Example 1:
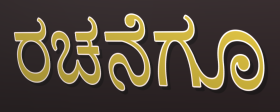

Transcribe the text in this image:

ರಚನೆಗೂ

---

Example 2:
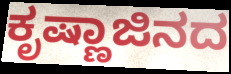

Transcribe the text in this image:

ಕೃಷ್ಣಾಜಿನದ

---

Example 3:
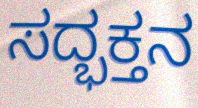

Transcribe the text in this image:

ಸದ್ಭಕ್ತನ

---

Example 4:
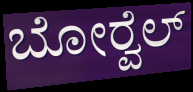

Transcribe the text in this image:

ಬೋರ್‍ವೆಲ್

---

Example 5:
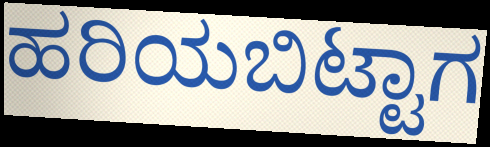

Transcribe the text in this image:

ಹರಿಯಬಿಟ್ಟಾಗ